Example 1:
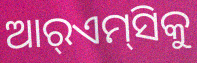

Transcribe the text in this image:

ଆର୍‌ଏମ୍‌ସିକୁ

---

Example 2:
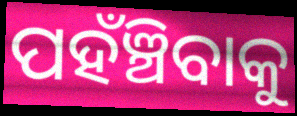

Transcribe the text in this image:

ପହଁଞ୍ଚିବାକୁ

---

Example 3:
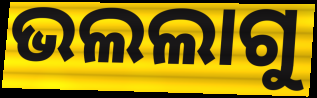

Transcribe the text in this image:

ଭଲଲାଗୁ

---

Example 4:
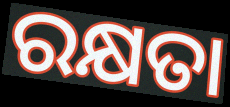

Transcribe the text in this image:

ରକ୍ଷତା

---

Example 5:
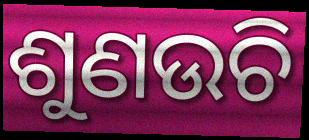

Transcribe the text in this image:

ଶୁଣଉଚି